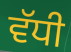
ਵੱਧੀ